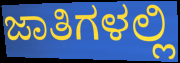
ಜಾತಿಗಳಲ್ಲಿ